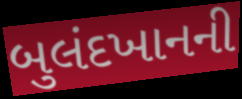
બુલંદખાનની